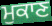
ਮੁਕਾਣ